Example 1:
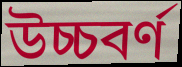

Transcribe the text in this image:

উচ্চবৰ্ণ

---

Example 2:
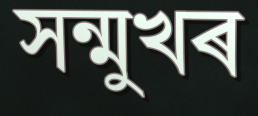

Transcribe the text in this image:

সন্মুখৰ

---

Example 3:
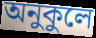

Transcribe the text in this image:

অনুকুলে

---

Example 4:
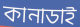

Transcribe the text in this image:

কানাডাই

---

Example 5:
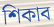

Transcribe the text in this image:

শিকাব